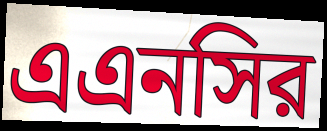
এএনসির